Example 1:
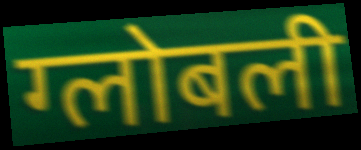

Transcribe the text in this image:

ग्लोबली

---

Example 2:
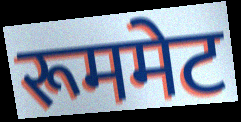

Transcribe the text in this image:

रूममेट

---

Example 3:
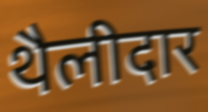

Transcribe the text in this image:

थैलीदार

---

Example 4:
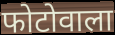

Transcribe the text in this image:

फोटोवाला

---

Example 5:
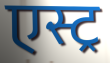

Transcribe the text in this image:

एस्ट्र